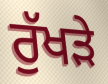
ਰੁੱਖੜੇ